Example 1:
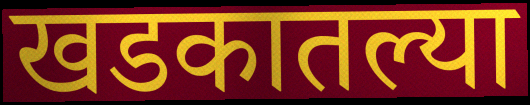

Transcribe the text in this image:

खडकातल्या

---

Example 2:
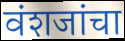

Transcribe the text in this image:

वंशजांचा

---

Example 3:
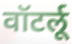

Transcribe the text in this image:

वॉटर्लू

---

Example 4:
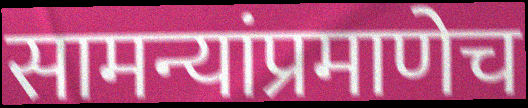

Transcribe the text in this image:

सामन्यांप्रमाणेच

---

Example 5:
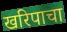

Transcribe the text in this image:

खरिपाचा